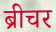
ब्रीचर